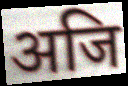
अजि